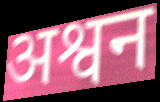
अश्वन